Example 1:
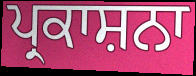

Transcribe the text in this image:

ਪ੍ਰਕਾਸ਼ਨਾ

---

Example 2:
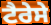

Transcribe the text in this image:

ਟੈਰੇਸੇ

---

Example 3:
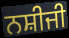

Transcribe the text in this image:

ਨਸ਼ੀਜੀ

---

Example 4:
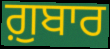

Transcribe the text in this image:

ਗ਼ੁਬਾਰ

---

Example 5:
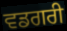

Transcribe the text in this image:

ਵਡਗਰੀ